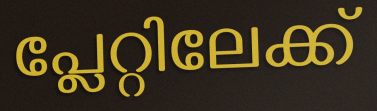
പ്ലേറ്റിലേക്ക്